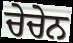
ਚੇਚੇਨ